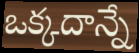
ఒక్కదాన్నే